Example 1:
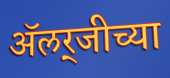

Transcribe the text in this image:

ॲलर्जीच्या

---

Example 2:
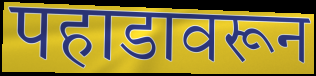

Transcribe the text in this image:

पहाडावरून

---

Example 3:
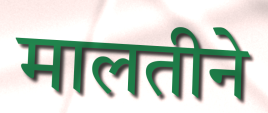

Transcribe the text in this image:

मालतीने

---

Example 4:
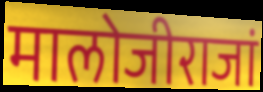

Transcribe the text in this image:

मालोजीराजां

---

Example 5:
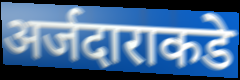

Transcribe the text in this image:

अर्जदाराकडे